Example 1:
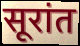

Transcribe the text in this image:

सूरांत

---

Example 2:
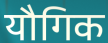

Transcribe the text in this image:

यौगिक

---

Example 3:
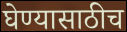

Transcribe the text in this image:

घेण्यासाठीच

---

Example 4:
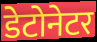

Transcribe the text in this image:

डेटोनेटर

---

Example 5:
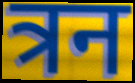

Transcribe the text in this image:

त्रन